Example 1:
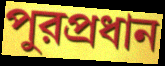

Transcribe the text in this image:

পুরপ্রধান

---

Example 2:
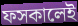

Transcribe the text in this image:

ফসকালেই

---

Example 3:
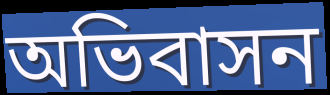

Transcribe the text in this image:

অভিবাসন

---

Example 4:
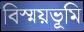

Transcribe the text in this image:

বিস্ময়ভূমি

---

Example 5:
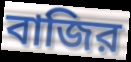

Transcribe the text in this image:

বাজির